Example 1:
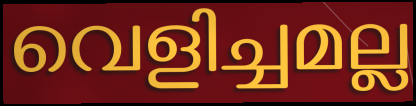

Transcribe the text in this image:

വെളിച്ചമല്ല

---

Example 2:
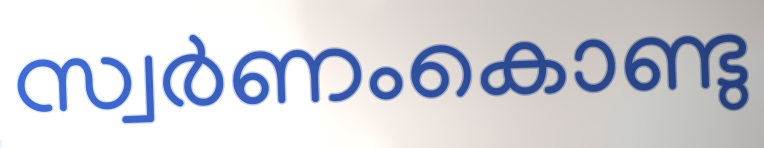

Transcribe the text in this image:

സ്വർണംകൊണ്ടു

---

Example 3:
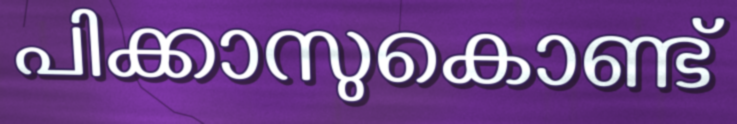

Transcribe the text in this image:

പിക്കാസുകൊണ്ട്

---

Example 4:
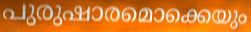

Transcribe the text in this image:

പുരുഷാരമൊക്കെയും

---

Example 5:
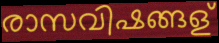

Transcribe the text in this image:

രാസവിഷങ്ങള്